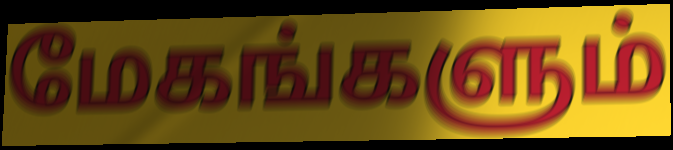
மேகங்களும்